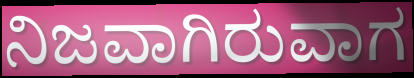
ನಿಜವಾಗಿರುವಾಗ